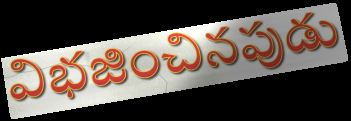
విభజించినపుడు